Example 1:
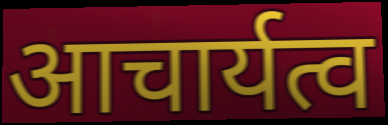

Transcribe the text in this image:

आचार्यत्व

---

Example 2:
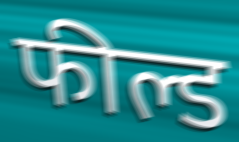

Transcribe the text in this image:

फील्‍ड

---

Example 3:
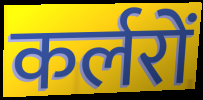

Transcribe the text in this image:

कर्लरों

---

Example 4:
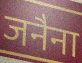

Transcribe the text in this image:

जनैना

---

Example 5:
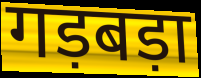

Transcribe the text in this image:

गड़बड़ा